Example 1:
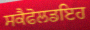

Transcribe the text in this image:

ਸਕੈਫੋਲਡਇਹ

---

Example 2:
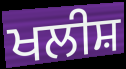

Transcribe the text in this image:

ਖਲੀਸ਼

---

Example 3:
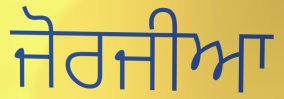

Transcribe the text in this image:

ਜੋਰਜੀਆ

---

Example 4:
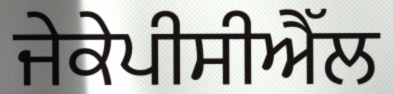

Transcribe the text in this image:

ਜੇਕੇਪੀਸੀਐੱਲ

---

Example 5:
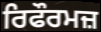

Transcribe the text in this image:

ਰਿਫੌਰਮਜ਼